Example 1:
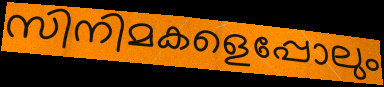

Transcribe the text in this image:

സിനിമകളെപ്പോലും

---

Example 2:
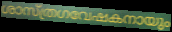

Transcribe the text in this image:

ശാസ്ത്രഗവേഷകനായും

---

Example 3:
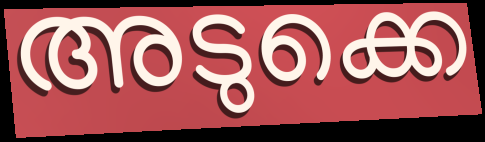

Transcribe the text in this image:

അടുക്കെ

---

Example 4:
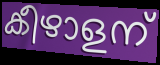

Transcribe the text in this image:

കീഴാളന്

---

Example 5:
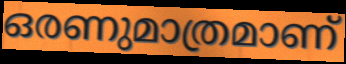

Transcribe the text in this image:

ഒരണുമാത്രമാണ്